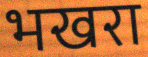
भखरा